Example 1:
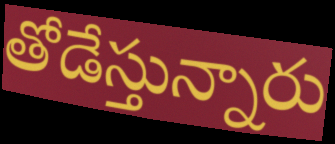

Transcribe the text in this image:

తోడేస్తున్నారు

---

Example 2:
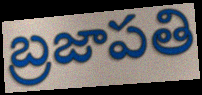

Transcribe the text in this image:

బ్రజాపతి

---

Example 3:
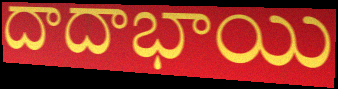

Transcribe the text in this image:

దాదాభాయి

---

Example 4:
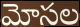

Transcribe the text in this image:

మోసల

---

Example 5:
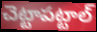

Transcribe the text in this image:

చెట్టాపట్టాల్